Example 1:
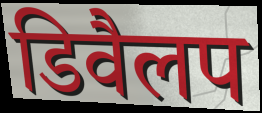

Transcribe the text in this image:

डिवैलप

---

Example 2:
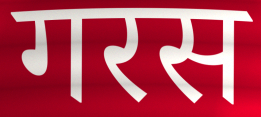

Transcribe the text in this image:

गरस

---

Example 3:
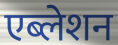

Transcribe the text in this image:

एब्लेशन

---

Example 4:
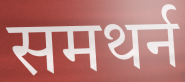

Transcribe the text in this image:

समथर्न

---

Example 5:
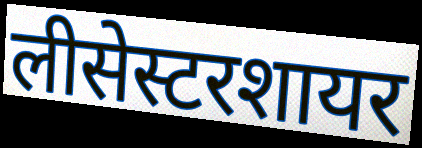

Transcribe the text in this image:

लीसेस्टरशायर